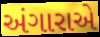
અંગારાએ